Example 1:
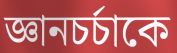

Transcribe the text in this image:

জ্ঞানচর্চাকে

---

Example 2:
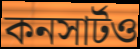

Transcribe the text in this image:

কনসার্টও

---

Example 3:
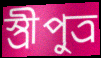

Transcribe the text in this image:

স্ত্রীপুত্র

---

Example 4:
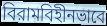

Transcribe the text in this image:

বিরামবিহীনভাবে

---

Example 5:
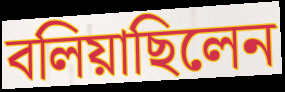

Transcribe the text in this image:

বলিয়াছিলেন